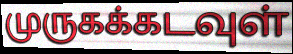
முருகக்கடவுள்